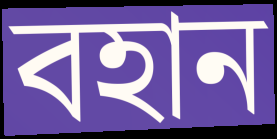
বহান